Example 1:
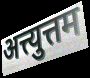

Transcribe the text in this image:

अत्त्युत्तम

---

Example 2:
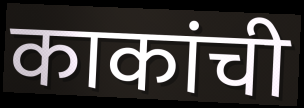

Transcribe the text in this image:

काकांची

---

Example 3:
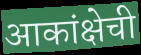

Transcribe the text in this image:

आकांक्षेची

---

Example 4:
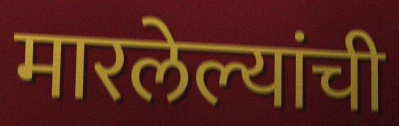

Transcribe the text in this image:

मारलेल्यांची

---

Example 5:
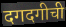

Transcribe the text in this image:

दगदगीची